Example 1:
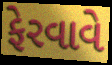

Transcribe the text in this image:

ફેરવાવે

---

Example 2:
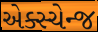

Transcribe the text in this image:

એક્સ્ચેન્જ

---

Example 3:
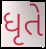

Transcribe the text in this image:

ધૃતે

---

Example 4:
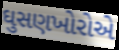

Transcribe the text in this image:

ઘુસણખોરોએ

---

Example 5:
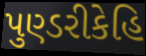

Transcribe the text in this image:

પુણ્ડરીકેહિ